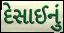
દેસાઈનું